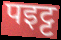
पइट्ट